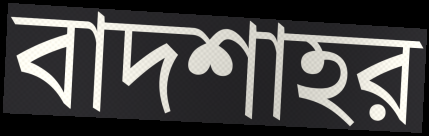
বাদশাহর